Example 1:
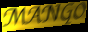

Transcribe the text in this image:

MANGO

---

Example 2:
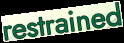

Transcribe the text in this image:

restrained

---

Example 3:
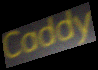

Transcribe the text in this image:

Caddy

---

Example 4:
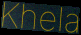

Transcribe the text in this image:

Khela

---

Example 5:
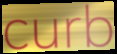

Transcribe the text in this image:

curb